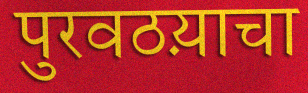
पुरवठय़ाचा